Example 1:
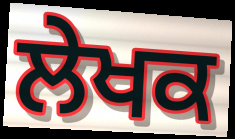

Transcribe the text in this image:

ਲੇਖਕ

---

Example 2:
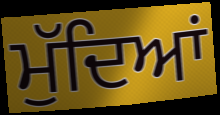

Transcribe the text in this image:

ਮੁੱਦਿਆਂ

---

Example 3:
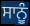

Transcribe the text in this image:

ਸਾਨੂੰ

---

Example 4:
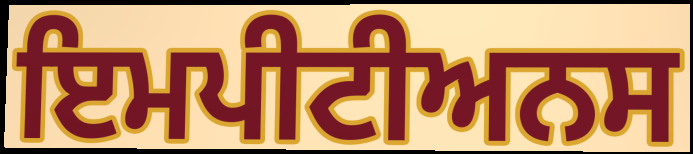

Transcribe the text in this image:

ਇਮਪੀਟੀਅਨਸ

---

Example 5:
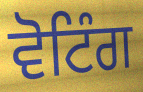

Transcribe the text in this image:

ਵੋਟਿੰਗ